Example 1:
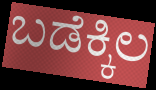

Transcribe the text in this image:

ಬಡೆಕ್ಕಿಲ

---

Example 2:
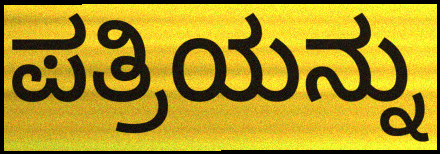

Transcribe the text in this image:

ಪತ್ರಿಯನ್ನು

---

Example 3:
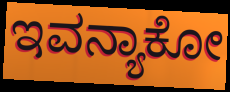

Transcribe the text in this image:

ಇವನ್ಯಾಕೋ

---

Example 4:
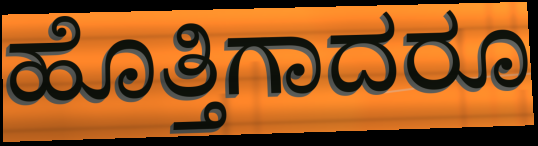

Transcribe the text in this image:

ಹೊತ್ತಿಗಾದರೂ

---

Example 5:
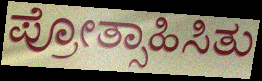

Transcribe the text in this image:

ಪ್ರೋತ್ಸಾಹಿಸಿತು